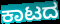
ಕಾಟದ